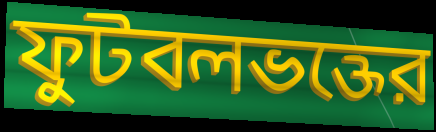
ফুটবলভক্তের